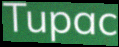
Tupac